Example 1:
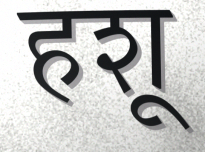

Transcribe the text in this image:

हशू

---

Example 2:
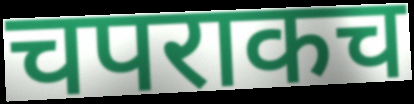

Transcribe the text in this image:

चपराकच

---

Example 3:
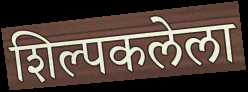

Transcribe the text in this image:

शिल्पकलेला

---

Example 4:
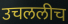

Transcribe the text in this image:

उचललीच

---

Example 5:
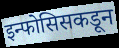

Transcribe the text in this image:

इन्फोसिसकडून